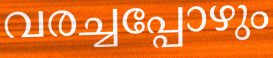
വരച്ചപ്പോഴും